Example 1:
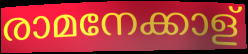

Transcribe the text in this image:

രാമനേക്കാള്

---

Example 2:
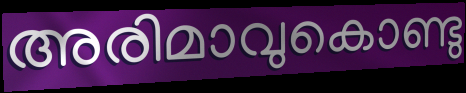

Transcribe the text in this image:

അരിമാവുകൊണ്ടു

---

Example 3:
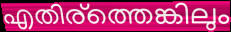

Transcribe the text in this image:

എതിര്ത്തെങ്കിലും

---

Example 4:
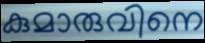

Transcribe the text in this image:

കുമാരുവിനെ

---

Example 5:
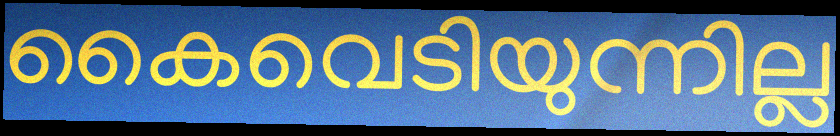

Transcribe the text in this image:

കൈവെടിയുന്നില്ല